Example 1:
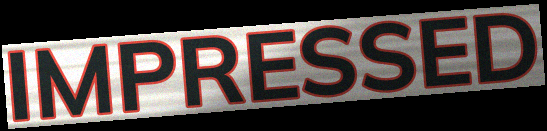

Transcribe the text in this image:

IMPRESSED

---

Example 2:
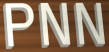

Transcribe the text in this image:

PNN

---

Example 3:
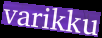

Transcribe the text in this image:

varikku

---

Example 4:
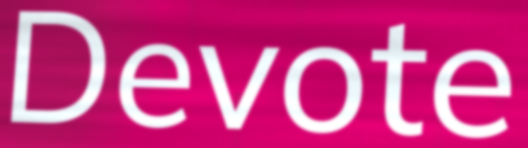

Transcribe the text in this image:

Devote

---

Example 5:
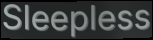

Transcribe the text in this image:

Sleepless